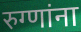
रुग्णांना